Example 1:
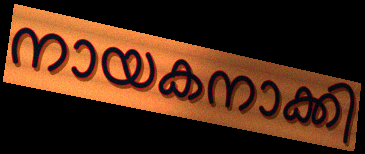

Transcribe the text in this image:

നായകനാക്കി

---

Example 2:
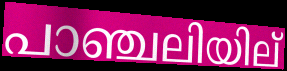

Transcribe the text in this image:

പാഞ്ചലിയില്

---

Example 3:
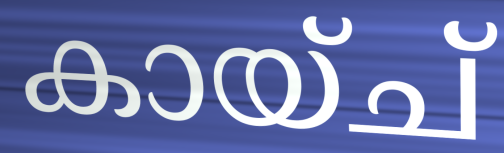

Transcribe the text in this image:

കായ്ച്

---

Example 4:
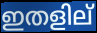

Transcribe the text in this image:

ഇതളില്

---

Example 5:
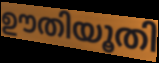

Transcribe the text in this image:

ഊതിയൂതി